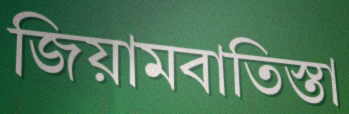
জিয়ামবাতিস্তা